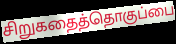
சிறுகதைத்தொகுப்பை